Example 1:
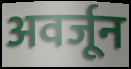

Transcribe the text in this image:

अवर्जून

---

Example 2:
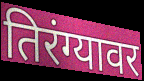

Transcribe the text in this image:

तिरंग्यावर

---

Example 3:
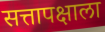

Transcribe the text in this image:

सत्तापक्षाला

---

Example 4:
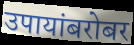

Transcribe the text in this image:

उपायांबरोबर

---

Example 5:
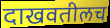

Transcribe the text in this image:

दाखवतीलच